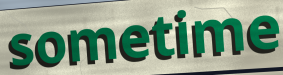
sometime